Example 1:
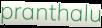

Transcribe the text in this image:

pranthalu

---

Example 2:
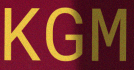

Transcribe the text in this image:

KGM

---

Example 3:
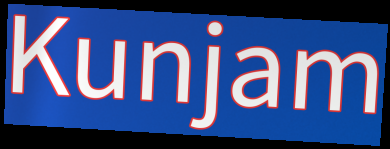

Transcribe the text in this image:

Kunjam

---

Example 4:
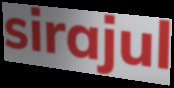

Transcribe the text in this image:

sirajul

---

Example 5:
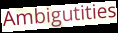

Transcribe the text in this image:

Ambigutities